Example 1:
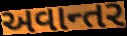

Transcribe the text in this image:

અવાન્તર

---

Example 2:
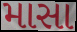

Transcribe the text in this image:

માસા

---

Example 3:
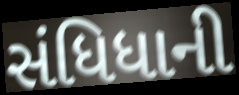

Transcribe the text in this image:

સંધિધાની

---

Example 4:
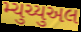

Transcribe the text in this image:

મ્ચુચ્યુઅલ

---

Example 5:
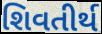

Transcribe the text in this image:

શિવતીર્થ